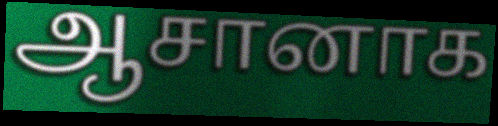
ஆசானாக